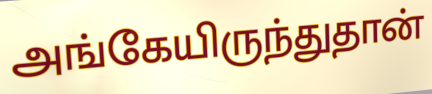
அங்கேயிருந்துதான்